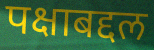
पक्षाबद्दल